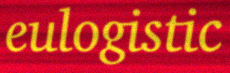
eulogistic